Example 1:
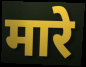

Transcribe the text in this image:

मारे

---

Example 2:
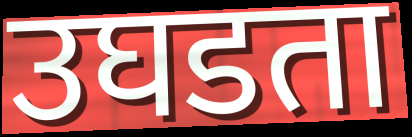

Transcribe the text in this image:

उघडता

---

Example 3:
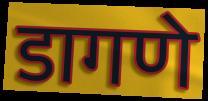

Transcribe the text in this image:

डागणे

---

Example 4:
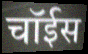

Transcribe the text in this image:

चॉईस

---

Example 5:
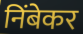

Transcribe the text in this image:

निंबेकर